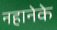
नहानेके